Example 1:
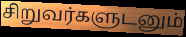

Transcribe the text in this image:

சிறுவர்களுடனும்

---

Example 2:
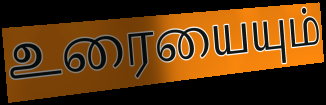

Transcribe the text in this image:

உரையையும்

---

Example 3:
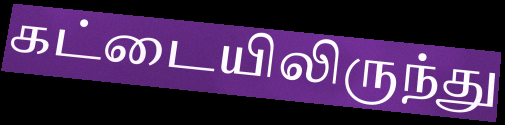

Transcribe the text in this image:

கட்டையிலிருந்து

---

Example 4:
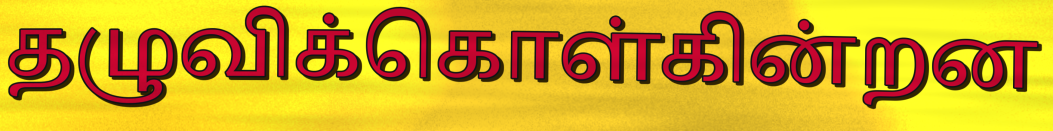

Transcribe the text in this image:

தழுவிக்கொள்கின்றன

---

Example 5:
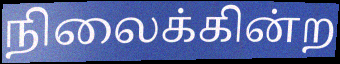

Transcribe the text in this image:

நிலைக்கின்ற